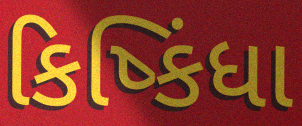
કિષ્કિંધા